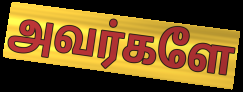
அவர்களே